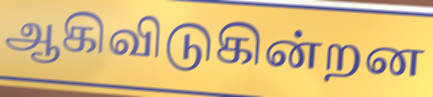
ஆகிவிடுகின்றன